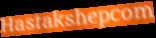
Hastakshepcom